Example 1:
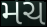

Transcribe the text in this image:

મચ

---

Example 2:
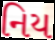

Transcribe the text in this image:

નિય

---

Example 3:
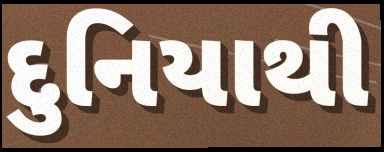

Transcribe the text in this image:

દુનિયાથી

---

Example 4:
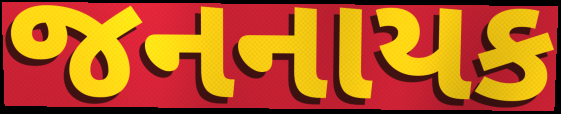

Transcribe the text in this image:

જનનાયક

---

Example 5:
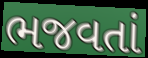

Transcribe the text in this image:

ભજવતાં